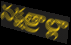
నక్షత్రాల్లా